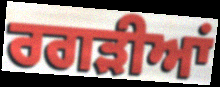
ਰਗੜੀਆਂ